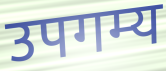
उपगम्य